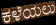
ಕಳೆಯಲು